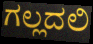
ಗಲ್ಲದಲಿ